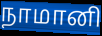
நாமானி